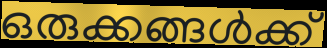
ഒരുക്കങ്ങൾക്ക്